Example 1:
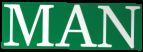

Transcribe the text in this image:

MAN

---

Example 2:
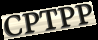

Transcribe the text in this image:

CPTPP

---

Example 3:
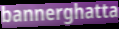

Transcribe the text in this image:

bannerghatta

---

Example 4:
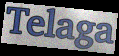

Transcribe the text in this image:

Telaga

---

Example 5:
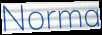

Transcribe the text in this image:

Norma